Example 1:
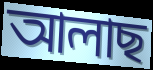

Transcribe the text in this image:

আলাছ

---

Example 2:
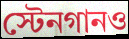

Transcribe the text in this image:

স্টেনগানও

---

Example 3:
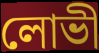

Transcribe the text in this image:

লোভী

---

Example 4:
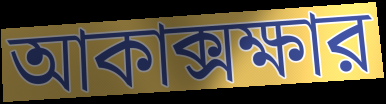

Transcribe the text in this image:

আকাক্সক্ষার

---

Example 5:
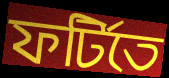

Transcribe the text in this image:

ফর্টিতে